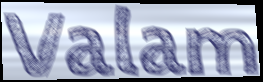
Valam